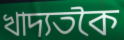
খাদ্যতকৈ